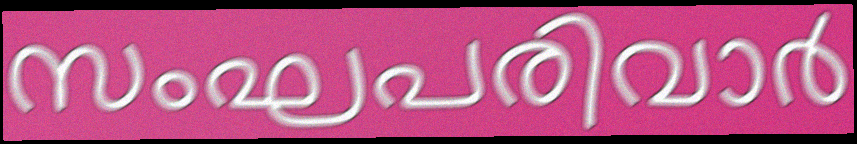
സംഘപരിവാർ